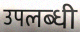
उपलब्धी